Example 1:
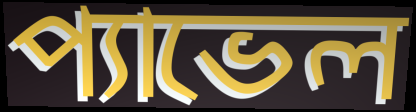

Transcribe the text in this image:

প্যাভেল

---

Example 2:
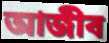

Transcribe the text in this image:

আজীব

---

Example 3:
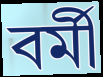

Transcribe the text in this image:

বর্মী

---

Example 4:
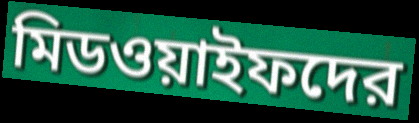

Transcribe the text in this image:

মিডওয়াইফদের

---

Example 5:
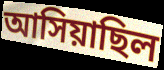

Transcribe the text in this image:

আসিয়াছিল